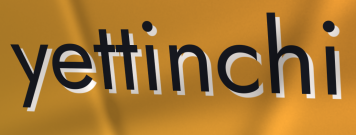
yettinchi